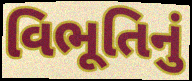
વિભૂતિનું